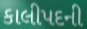
કાલીપદની